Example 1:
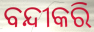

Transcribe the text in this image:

ବନ୍ଦୀକରି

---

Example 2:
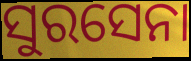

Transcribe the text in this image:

ସୁରସେନା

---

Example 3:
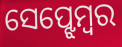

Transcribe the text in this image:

ସେପ୍ଝେମ୍ବର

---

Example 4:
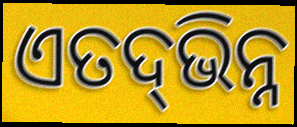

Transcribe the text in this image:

ଏତଦ୍‌ଭିନ୍ନ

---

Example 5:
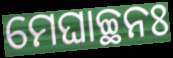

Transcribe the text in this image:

ମେଘାଚ୍ଛନଃ